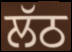
ਲੱਠ